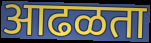
आढळता